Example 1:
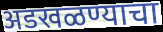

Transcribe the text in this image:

अडखळण्याचा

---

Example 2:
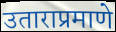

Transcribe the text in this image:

उताराप्रमाणे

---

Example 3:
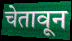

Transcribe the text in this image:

चेतावून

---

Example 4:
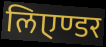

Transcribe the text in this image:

लिएण्डर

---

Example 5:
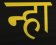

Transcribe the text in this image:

न्हा